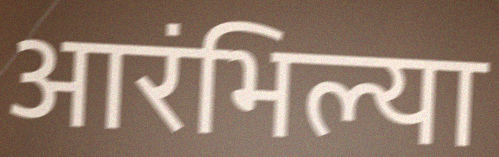
आरंभिल्या